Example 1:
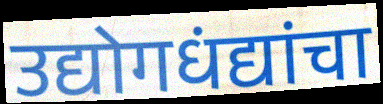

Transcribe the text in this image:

उद्योगधंद्यांचा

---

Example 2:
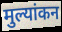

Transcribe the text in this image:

मुल्यांकन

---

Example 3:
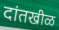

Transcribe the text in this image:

दांतखीळ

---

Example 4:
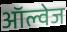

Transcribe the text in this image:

ऑल्वेज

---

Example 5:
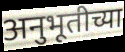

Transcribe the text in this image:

अनुभूतीच्या